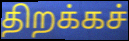
திறக்கச்